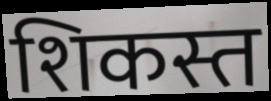
शिकस्त